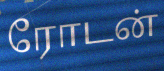
ரோடன்